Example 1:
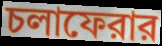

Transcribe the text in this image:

চলাফেরার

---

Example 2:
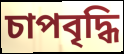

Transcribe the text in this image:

চাপবৃদ্ধি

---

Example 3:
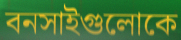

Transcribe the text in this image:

বনসাইগুলোকে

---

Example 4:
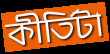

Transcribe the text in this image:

কীর্তিটা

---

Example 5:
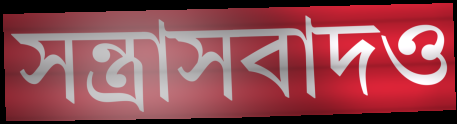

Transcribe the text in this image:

সন্ত্রাসবাদও